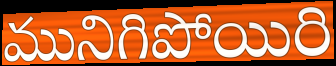
మునిగిపోయిరి